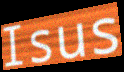
Isus